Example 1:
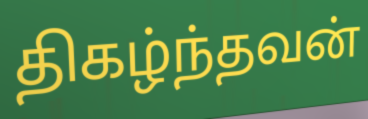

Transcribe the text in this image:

திகழ்ந்தவன்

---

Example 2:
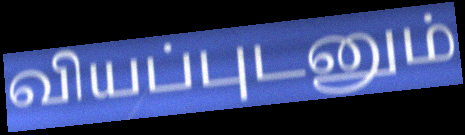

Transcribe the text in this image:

வியப்புடனும்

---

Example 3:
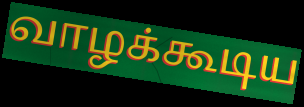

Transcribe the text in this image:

வாழக்கூடிய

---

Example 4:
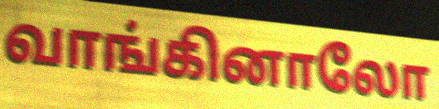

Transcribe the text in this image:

வாங்கினாலோ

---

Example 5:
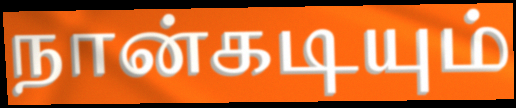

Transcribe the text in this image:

நான்கடியும்